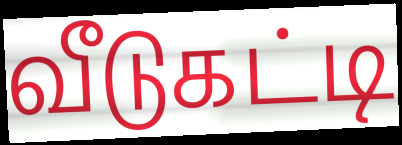
வீடுகட்டி